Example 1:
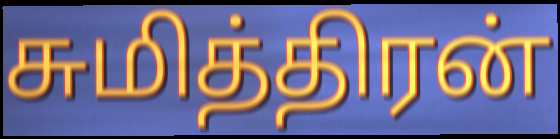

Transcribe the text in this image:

சுமித்திரன்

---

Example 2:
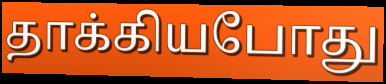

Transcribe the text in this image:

தாக்கியபோது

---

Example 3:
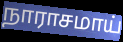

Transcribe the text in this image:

நாராசமாய்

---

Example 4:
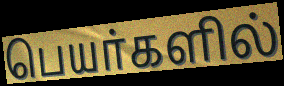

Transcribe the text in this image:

பெயர்களில்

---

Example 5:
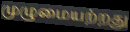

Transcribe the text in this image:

முழுமையற்றது